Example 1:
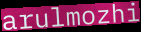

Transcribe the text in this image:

arulmozhi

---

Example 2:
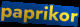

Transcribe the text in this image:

paprikor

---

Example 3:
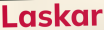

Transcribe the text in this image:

Laskar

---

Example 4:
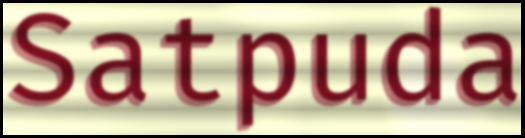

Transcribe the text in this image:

Satpuda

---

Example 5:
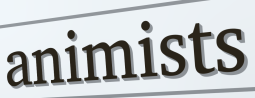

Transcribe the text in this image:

animists